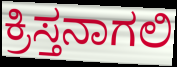
ಕ್ರಿಸ್ತನಾಗಲಿ